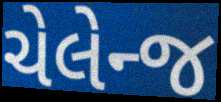
ચેલેન્જ